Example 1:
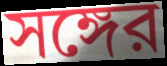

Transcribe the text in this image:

সঙ্গের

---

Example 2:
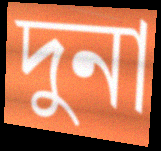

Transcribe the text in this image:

দুনা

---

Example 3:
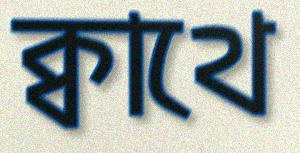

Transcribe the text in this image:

ক্বাথে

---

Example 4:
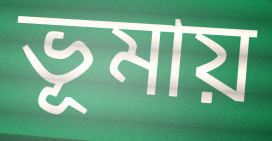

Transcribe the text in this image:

ভূমায়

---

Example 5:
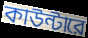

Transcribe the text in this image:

কাউন্টারে